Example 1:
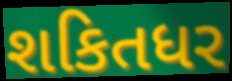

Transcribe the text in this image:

શકિતધર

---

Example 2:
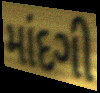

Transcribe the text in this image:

માંદગી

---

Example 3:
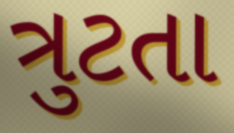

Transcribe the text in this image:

ત્રુટતા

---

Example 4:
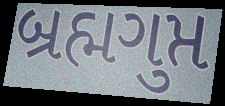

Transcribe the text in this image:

બ્રહ્મગુપ્ત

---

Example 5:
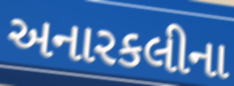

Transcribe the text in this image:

અનારકલીના